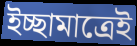
ইচ্ছামাত্রেই